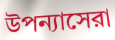
উপন্যাসেরা